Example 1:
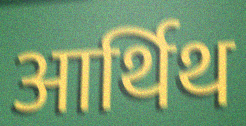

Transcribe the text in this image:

आर्थिथ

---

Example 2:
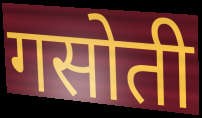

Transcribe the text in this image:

गसोती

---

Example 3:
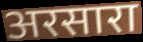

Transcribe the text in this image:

अरसारा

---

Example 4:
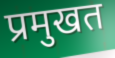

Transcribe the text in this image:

प्रमुखत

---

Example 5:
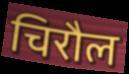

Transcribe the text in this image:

चिरौल